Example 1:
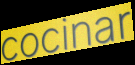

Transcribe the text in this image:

cocinar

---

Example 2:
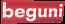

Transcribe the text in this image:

beguni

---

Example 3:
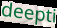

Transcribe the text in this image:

deepti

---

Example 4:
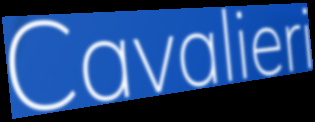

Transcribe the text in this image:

Cavalieri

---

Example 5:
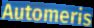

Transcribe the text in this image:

Automeris